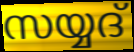
സയ്യദ്